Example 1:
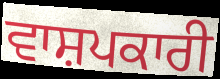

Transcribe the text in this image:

ਵਾਸ਼ਪਕਾਰੀ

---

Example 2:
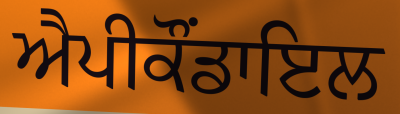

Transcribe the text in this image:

ਐਪੀਕੌਂਡਾਇਲ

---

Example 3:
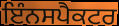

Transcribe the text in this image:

ਇੰਨਸਪੈਕਟਰ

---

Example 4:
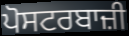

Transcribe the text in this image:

ਪੋਸਟਰਬਾਜ਼ੀ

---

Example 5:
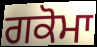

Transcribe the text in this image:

ਗਕੋਮਾ